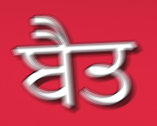
ਬੈਤ